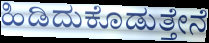
ಹಿಡಿದುಕೊಡುತ್ತೇನೆ